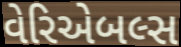
વેરિએબલ્સ